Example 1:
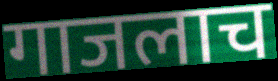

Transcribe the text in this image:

गाजलाच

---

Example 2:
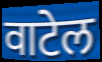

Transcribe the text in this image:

वाटेल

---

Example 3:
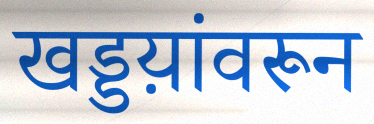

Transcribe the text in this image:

खड्डय़ांवरून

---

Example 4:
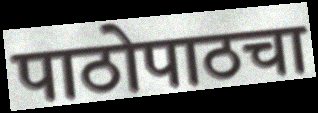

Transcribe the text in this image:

पाठोपाठचा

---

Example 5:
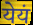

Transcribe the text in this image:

येयं